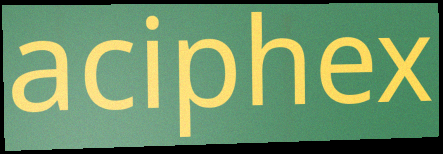
aciphex